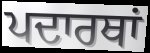
ਪਦਾਰਥਾਂ